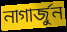
নাগাৰ্জুন